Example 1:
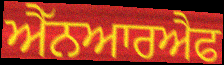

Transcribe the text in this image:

ਐੱਨਆਰਐਫ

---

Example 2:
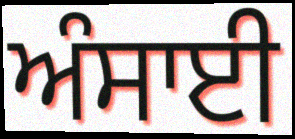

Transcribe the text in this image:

ਅੰਸਾਈ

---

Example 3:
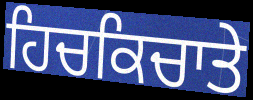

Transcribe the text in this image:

ਹਿਚਕਿਚਾਤੇ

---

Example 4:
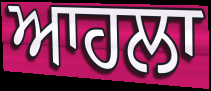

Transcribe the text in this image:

ਆਹਲਾ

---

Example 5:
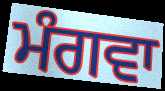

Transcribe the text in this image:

ਮੰਗਵਾ